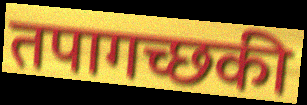
तपागच्छकी